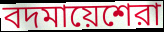
বদমায়েশেরা